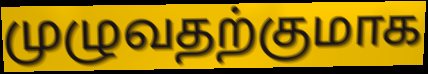
முழுவதற்குமாக